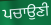
ਪਚਾਉਣੀ